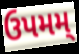
ઉપમમ્